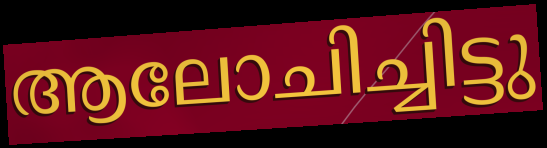
ആലോചിച്ചിട്ടു